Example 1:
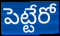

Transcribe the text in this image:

పెట్టేరో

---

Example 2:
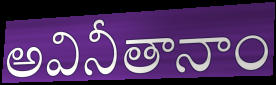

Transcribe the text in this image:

అవినీతానాం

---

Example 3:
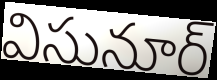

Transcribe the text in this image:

విసునూర్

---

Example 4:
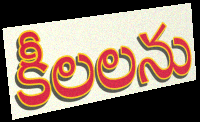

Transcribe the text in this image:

కీలలను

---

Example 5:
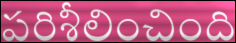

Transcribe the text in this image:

పరిశీలించింది